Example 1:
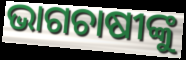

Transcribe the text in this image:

ଭାଗଚାଷୀଙ୍କୁ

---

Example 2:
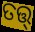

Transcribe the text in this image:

ତତ୍ତ୍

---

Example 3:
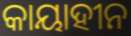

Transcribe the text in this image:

କାୟାହୀନ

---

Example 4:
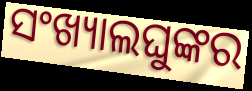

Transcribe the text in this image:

ସଂଖ୍ୟାଲଘୁଙ୍କର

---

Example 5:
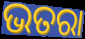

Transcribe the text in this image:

ଭତରା